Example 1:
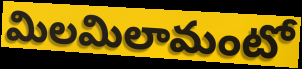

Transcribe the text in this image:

మిలమిలామంటో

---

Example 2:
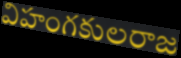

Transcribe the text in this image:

విహంగకులరాజ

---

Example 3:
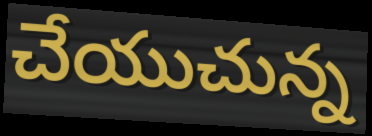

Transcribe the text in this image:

చేయుచున్న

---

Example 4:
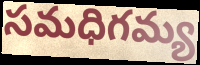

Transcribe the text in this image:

సమధిగమ్య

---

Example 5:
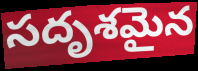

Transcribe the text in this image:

సదృశమైన